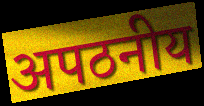
अपठनीय